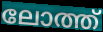
ലോത്ത്